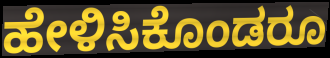
ಹೇಳಿಸಿಕೊಂಡರೂ